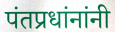
पंतप्रधांनांनी